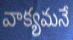
వాక్యమనే